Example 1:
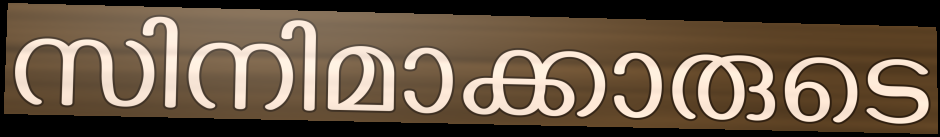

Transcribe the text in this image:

സിനിമാക്കാരുടെ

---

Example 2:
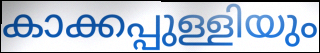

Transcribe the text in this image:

കാക്കപ്പുള്ളിയും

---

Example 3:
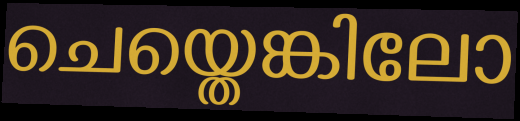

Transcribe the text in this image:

ചെയ്തെങ്കിലോ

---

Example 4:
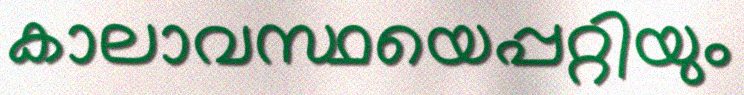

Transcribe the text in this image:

കാലാവസ്ഥയെപ്പറ്റിയും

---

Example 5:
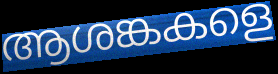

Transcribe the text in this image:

ആശങ്കകളെ